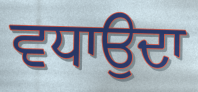
ਵਧਾਉਦਾ